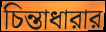
চিন্তাধারার